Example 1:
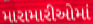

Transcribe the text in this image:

મારામારીઓમાં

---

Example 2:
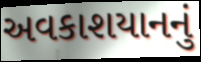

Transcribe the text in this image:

અવકાશયાનનું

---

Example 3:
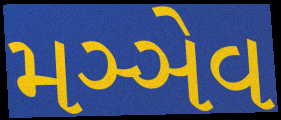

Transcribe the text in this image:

મઞ્ઞેવ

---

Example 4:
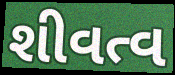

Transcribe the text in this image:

શીવત્વ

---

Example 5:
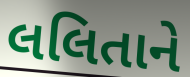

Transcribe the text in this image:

લલિતાને